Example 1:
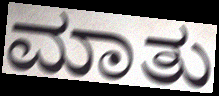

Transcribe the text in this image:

ಮಾತು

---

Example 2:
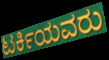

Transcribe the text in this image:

ಟರ್ಕಿಯವರು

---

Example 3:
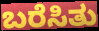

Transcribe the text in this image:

ಬರೆಸಿತು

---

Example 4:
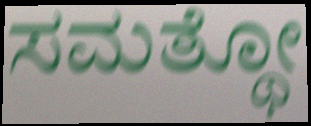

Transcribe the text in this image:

ಸಮತ್ಥೋ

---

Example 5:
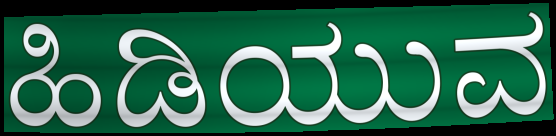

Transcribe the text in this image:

ಹಿಡಿಯುವ